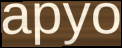
apyo